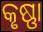
କୃଷ୍ଣା